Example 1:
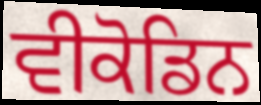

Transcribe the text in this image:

ਵੀਕੋਡਿਨ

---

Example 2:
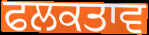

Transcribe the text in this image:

ਫਲਕਤਾਵ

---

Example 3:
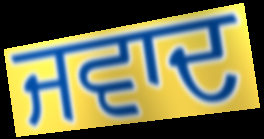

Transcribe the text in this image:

ਜਵਾਦ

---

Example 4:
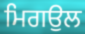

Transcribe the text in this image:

ਮਿਗਉਲ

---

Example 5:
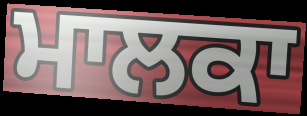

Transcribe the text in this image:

ਮਾਲਕਾ